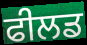
ਫੀਲਡ